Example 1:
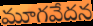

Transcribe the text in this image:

మూగవేదన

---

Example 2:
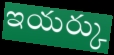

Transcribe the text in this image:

ఇయర్కు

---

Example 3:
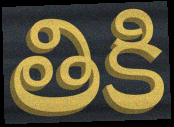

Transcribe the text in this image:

తికి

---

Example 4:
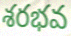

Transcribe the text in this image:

శరభవ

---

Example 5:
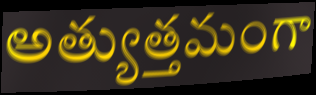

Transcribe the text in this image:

అత్యుత్తమంగా